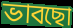
ভাবছো